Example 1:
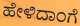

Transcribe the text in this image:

ಹೇಳಿದಾಂಗೆ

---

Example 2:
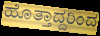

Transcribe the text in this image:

ಹೊತ್ತಾದ್ದರಿಂದ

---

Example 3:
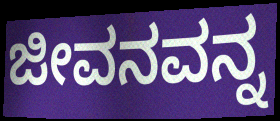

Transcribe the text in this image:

ಜೀವನವನ್ನ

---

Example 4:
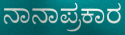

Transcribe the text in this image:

ನಾನಾಪ್ರಕಾರ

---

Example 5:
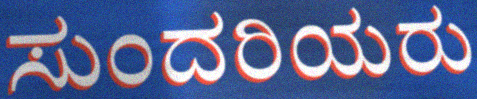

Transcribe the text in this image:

ಸುಂದರಿಯರು